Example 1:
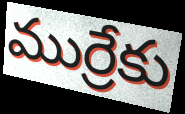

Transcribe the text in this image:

ముర్రేకు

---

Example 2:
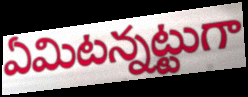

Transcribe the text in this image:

ఏమిటన్నట్టుగా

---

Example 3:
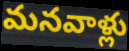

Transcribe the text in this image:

మనవాళ్లు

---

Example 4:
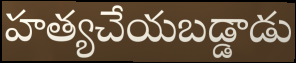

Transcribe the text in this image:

హత్యచేయబడ్డాడు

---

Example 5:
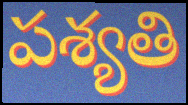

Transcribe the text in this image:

పశ్యతి